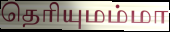
தெரியுமம்மா